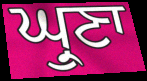
ਘ੍ਰੁਣਾ